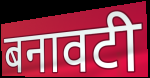
बनावटी